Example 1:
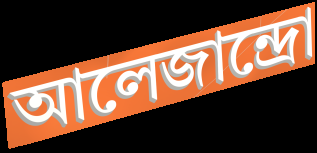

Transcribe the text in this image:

আলেজান্দ্রো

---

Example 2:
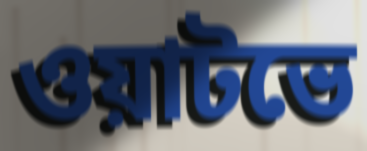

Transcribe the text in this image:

ওয়াটভে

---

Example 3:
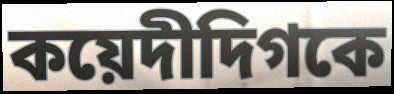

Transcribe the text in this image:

কয়েদীদিগকে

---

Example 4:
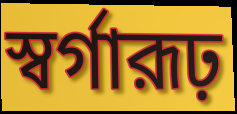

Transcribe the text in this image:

স্বর্গারূঢ়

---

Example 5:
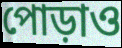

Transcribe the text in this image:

পোড়াও